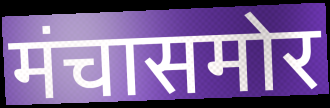
मंचासमोर